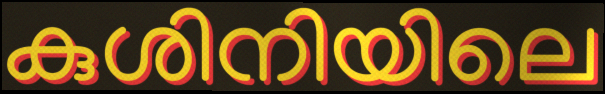
കുശിനിയിലെ